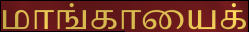
மாங்காயைக்